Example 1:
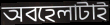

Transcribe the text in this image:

অবহেলাটাই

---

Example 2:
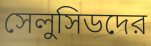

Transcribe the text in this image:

সেলুসিডদের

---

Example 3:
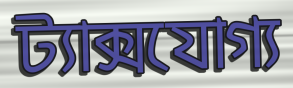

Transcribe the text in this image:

ট্যাক্সযোগ্য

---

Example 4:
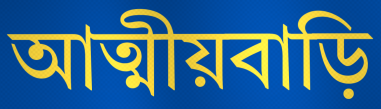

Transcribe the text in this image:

আত্মীয়বাড়ি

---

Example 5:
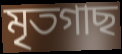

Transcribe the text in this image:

মৃতগাছ